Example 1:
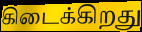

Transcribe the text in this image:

கிடைக்கிறது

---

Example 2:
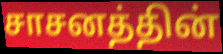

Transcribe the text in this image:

சாசனத்தின்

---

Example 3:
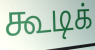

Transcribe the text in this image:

கூடிக்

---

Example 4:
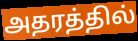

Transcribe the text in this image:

அதரத்தில்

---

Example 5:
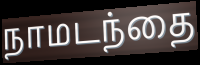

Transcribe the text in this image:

நாமடந்தை